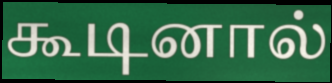
கூடினால்